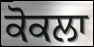
ਕੋਕਲਾ